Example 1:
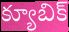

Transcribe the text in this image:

క్యూబిక్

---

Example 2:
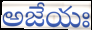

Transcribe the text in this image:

అజేయః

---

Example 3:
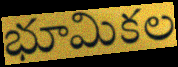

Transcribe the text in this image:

భూమికల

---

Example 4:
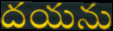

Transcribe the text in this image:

దయను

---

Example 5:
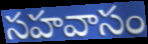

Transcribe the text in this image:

సహవాసం